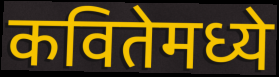
कवितेमध्ये